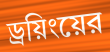
ড্রয়িংয়ের